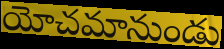
యోచమానుండు